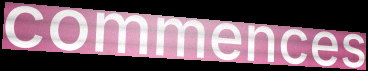
commences